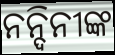
ନନ୍ଦିନୀଙ୍କ